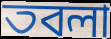
তবলা